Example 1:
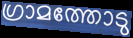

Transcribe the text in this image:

ഗ്രാമത്തോടു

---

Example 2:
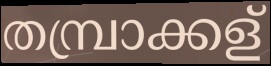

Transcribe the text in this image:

തമ്പ്രാക്കള്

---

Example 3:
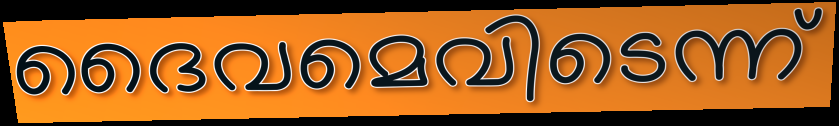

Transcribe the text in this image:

ദൈവമെവിടെന്ന്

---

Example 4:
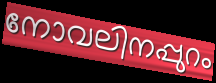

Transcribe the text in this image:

നോവലിനപ്പുറം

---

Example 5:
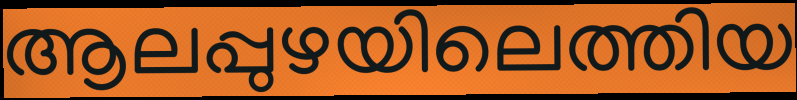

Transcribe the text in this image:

ആലപ്പുഴയിലെത്തിയ